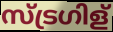
സ്ട്രഗിള്